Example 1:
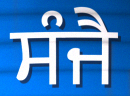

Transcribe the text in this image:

ਸੰਜੈ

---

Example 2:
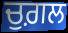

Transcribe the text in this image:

ਚੁਗ਼ਲ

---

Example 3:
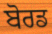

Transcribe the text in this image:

ਬੋਰਡ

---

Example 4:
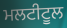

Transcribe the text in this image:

ਮਲਟੀਟੂਲ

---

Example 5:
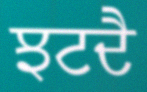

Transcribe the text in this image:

ਝਟਦੈ